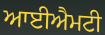
ਆਈਐਮਟੀ